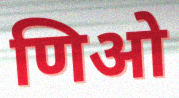
णिओ